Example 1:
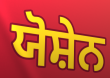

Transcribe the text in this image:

ਯੋਸ਼ੇਨ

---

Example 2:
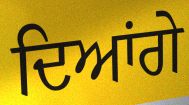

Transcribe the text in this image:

ਦਿਆਂਗੇ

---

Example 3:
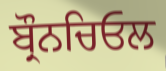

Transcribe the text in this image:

ਬ੍ਰੌਨਚਿਓਲ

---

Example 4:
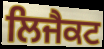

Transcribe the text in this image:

ਲਿਜੈਕਟ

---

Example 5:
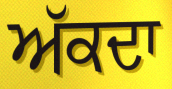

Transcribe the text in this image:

ਅੱਕਦਾ